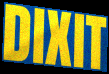
DIXIT